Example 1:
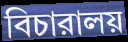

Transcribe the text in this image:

বিচারালয়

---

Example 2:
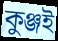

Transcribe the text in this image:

কুঞ্জই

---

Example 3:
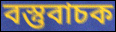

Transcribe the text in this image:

বস্তুবাচক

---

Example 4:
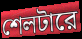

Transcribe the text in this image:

শেলটারে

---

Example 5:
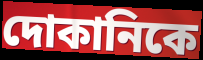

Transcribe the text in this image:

দোকানিকে